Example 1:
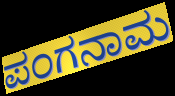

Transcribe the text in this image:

ಪಂಗನಾಮ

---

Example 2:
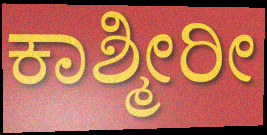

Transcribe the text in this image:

ಕಾಶ್ಮೀರೀ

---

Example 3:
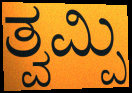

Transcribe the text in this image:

ತ್ವಮ್ಪಿ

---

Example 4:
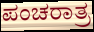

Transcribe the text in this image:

ಪಂಚರಾತ್ರ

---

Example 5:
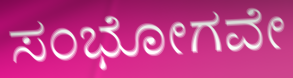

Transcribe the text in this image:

ಸಂಭೋಗವೇ